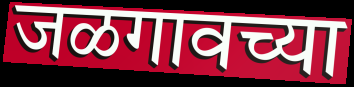
जळगावच्या